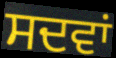
ਸਦਵਾਂ